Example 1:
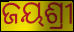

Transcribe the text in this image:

ଜୟଶ୍ରୀ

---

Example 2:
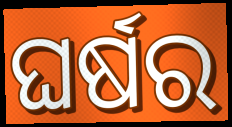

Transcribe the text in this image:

ଘର୍ଷର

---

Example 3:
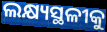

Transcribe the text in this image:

ଲକ୍ଷ୍ୟସ୍ଥଳୀକୁ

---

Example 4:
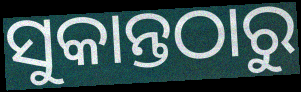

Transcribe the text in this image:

ସୁକାନ୍ତଠାରୁ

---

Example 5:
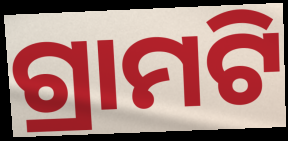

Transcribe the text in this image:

ଗ୍ରାମଟି